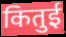
कितुई